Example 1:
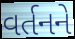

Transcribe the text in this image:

વર્તનને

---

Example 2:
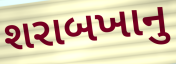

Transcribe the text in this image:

શરાબખાનુ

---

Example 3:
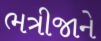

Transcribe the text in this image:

ભત્રીજાને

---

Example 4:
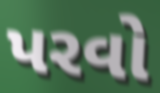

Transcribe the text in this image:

પરવો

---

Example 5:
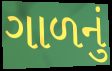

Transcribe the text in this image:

ગાળનું